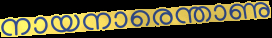
നായനാരെന്താണു